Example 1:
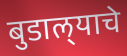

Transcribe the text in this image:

बुडाल्याचे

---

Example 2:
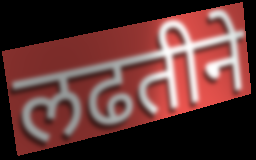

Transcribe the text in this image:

लढतीने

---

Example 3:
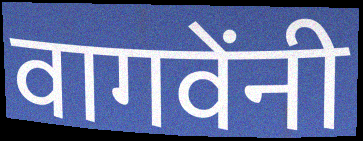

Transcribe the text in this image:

वागवेंनी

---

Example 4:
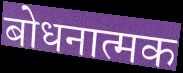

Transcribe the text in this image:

बोधनात्मक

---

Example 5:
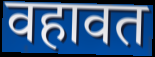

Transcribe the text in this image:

वहावत